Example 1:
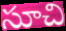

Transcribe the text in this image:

సూచి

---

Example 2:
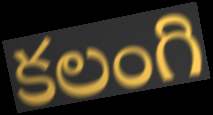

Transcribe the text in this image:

కలంగి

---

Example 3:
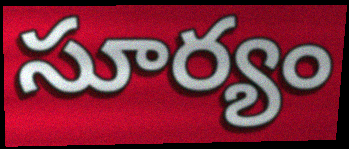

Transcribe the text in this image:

సూర్యం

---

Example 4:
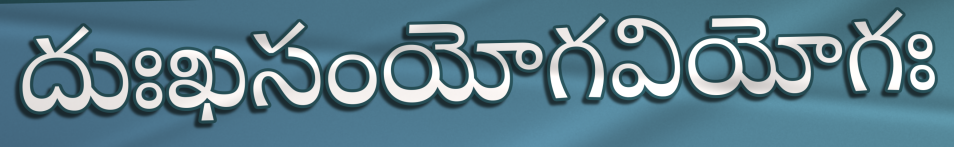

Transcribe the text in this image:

దుఃఖసంయోగవియోగః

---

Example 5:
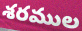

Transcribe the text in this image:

శరముల